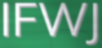
IFWJ